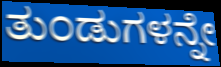
ತುಂಡುಗಳನ್ನೇ